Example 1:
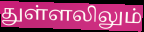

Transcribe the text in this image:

துள்ளலிலும்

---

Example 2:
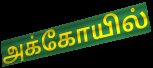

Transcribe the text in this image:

அக்கோயில்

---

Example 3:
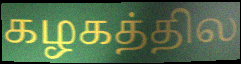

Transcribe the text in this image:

கழகத்தில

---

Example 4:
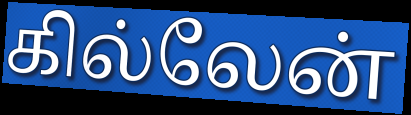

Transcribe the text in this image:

கில்லேன்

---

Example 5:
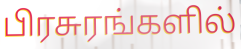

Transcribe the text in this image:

பிரசுரங்களில்